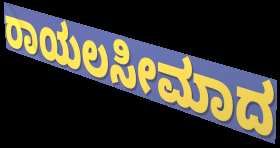
ರಾಯಲಸೀಮಾದ